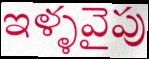
ఇళ్ళవైపు